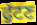
ਫੁੱਟਣ